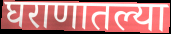
घराणातल्या